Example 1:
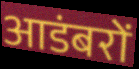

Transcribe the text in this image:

आडंबरों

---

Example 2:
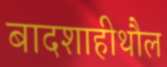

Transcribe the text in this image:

बादशाहीथौल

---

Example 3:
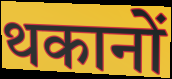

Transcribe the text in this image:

थकानों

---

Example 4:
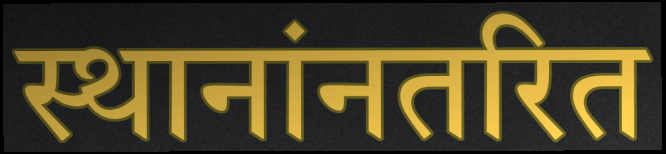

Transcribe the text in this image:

स्थानांनतरित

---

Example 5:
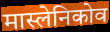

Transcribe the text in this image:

मास्लेनिकोव